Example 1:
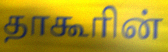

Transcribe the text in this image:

தாகூரின்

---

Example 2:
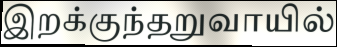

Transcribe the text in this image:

இறக்குந்தறுவாயில்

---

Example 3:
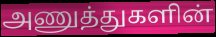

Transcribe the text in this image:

அணுத்துகளின்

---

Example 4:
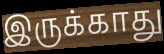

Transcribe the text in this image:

இருக்காது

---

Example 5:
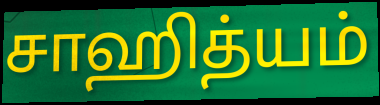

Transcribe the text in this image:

சாஹித்யம்